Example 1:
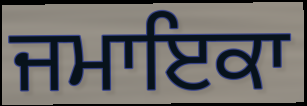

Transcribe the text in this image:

ਜਮਾਇਕਾ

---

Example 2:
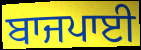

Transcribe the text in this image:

ਬਾਜਪਾਈ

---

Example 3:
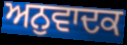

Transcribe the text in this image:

ਅਨੁਵਾਦਕ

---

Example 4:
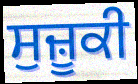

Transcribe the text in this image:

ਸੁਜ਼ੂਕੀ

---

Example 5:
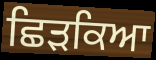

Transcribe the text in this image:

ਛਿੜਕਿਆ